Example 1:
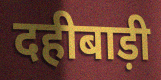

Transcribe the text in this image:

दहीबाड़ी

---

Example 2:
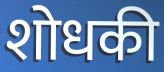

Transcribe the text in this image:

शोधकी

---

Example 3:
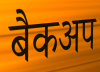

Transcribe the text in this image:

बैकअप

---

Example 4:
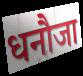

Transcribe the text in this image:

धनौजा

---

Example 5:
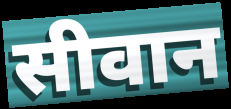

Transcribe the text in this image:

सीवान